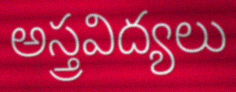
అస్త్రవిద్యలు